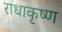
राधाकृष्ण